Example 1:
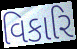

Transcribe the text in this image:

વિકારિ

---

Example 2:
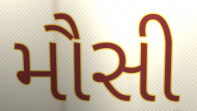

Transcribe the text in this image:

મૌસી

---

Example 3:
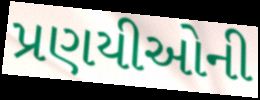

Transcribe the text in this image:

પ્રણયીઓની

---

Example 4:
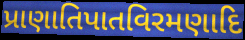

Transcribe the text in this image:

પ્રાણાતિપાતવિરમણાદિ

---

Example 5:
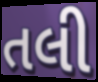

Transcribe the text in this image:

તલી